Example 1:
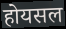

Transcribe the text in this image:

होयसल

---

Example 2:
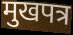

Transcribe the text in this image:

मुखपत्र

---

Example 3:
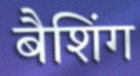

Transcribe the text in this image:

बैशिंग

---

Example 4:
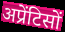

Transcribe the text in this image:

अप्रेंटिसों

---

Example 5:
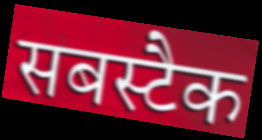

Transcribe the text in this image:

सबस्टैक